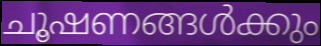
ചൂഷണങ്ങൾക്കും